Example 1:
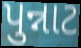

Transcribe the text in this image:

પુન્નાટ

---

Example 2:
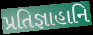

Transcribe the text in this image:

પ્રતિજ્ઞાહાનિ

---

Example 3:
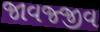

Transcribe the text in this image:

જાવજ્જીવ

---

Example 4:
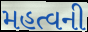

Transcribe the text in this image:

મહત્વની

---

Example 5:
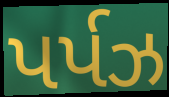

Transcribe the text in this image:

પર્પઝ